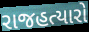
રાજહત્યારો